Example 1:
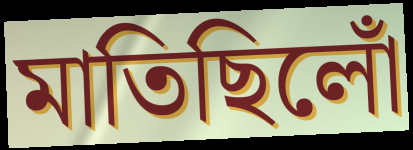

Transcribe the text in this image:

মাতিছিলোঁ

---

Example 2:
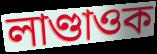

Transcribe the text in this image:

লাণ্ডাওক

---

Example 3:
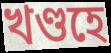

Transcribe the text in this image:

খণ্ডহে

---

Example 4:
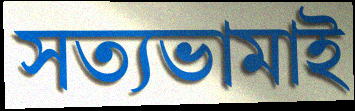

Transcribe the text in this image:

সত্যভামাই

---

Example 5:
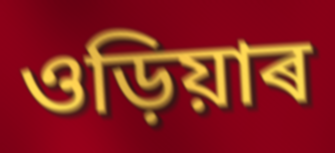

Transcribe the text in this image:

ওড়িয়াৰ